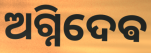
ଅଗ୍ନିଦେଵ